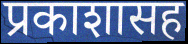
प्रकाशासह